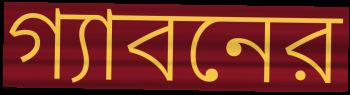
গ্যাবনের